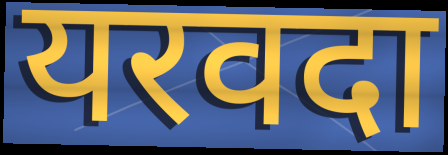
यरवदा